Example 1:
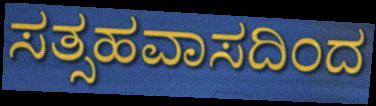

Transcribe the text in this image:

ಸತ್ಸಹವಾಸದಿಂದ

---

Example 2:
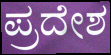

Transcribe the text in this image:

ಪ್ರದೇಶ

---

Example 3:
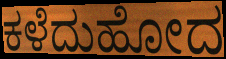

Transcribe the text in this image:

ಕಳೆದುಹೋದ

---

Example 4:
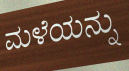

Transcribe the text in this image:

ಮಳೆಯನ್ನು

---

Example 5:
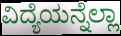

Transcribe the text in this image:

ವಿದ್ಯೆಯನ್ನೆಲ್ಲಾ